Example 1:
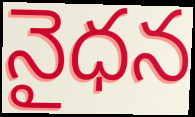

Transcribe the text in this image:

నైధన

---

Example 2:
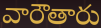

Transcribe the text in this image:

వారౌతారు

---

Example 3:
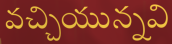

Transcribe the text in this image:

వచ్చియున్నవి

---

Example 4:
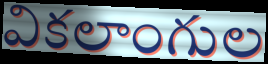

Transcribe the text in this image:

వికలాంగుల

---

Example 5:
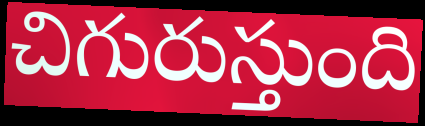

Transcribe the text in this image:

చిగురుస్తుంది